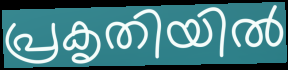
പ്രകൃതിയിൽ